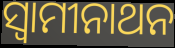
ସ୍ୱାମୀନାଥନ